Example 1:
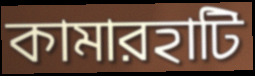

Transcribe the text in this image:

কামারহাটি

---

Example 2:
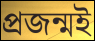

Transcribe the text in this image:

প্রজন্মই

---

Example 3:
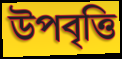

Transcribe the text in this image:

উপবৃত্তি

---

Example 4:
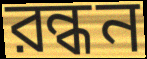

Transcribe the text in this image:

রন্ধন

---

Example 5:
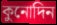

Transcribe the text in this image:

কুনোদিন